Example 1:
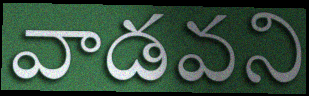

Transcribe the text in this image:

వాడవని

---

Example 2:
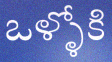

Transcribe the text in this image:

ఒళ్ళోకి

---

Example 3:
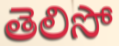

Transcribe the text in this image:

తెలిసో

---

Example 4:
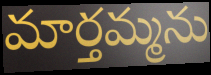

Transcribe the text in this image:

మార్తమ్మను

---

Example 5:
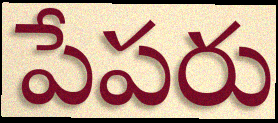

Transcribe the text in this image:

పేపరు